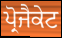
ਪ੍ਰੋਜੈਕੇਟ